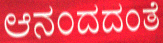
ಆನಂದದಂತೆ